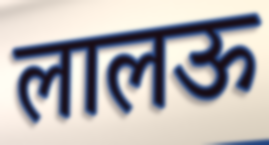
लालऊ